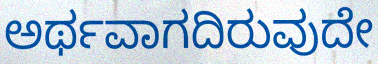
ಅರ್ಥವಾಗದಿರುವುದೇ